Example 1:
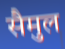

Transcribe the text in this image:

सैमुल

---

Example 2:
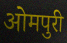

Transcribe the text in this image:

ओमपुरी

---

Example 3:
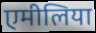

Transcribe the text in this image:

एमीलिया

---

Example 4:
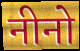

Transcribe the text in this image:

नीनो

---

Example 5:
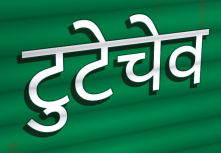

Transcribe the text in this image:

टुटेचेव